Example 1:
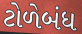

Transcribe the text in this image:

ટોળેબંધ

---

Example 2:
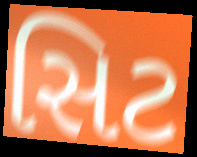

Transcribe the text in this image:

સિટ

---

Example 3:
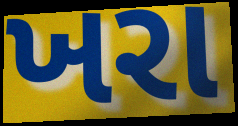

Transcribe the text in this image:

ખરા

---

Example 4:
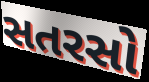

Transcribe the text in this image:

સતરસો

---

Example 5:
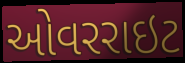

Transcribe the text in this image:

ઓવરરાઇટ